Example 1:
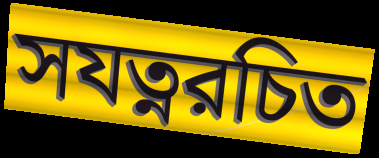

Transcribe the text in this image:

সযত্নরচিত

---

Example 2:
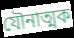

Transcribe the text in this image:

যৌনাত্মক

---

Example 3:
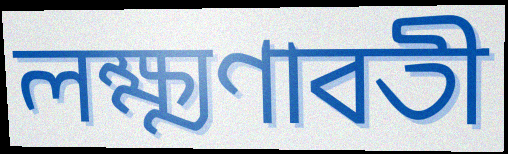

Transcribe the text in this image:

লক্ষ্মণাবতী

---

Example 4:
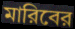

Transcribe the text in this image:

মারিবের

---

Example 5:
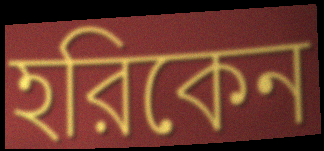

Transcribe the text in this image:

হরিকেন